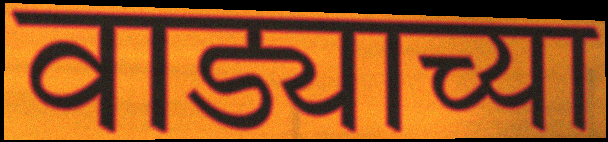
वाड्याच्या